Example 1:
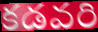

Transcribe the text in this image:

కడవరి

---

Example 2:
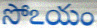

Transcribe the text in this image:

సోఽయం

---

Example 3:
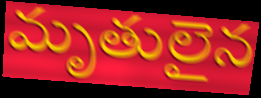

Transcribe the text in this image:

మృతులైన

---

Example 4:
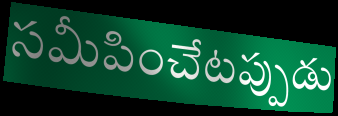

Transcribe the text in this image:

సమీపించేటప్పుడు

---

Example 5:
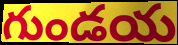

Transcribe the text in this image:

గుండయ